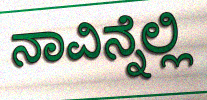
ನಾವಿನ್ನೆಲ್ಲಿ